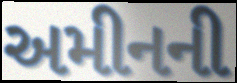
અમીનની